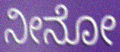
ನೀನೋ